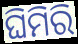
ଘିମିରି